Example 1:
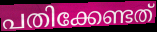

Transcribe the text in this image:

പതിക്കേണ്ടത്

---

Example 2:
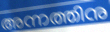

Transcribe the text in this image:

അന്നത്തിനു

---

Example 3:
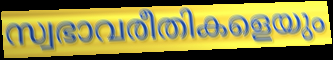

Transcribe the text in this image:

സ്വഭാവരീതികളെയും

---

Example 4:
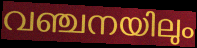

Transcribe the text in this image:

വഞ്ചനയിലും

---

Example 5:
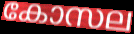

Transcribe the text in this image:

കോസല